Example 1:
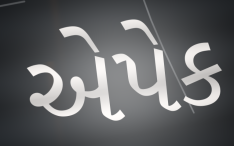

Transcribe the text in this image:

એપેક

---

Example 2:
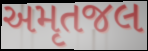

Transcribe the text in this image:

અમૃતજલ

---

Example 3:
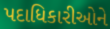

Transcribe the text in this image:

પદાધિકારીઓને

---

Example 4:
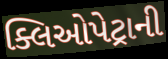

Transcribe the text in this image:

ક્લિઓપેટ્રાની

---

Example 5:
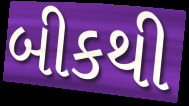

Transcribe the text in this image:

બીકથી